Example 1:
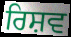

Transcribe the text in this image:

ਰਿਸ਼ਵ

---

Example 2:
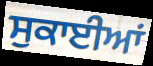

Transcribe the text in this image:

ਸੁਕਾਈਆਂ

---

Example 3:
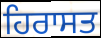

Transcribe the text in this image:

ਹਿਰਾਸਤ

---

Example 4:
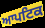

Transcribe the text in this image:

ਆਪਟਿਕ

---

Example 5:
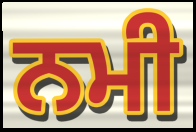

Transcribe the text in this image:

ਨਮੀ